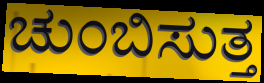
ಚುಂಬಿಸುತ್ತ